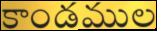
కాండముల